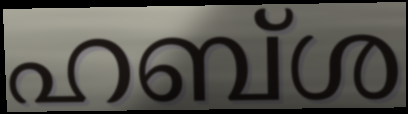
ഹബ്ശ